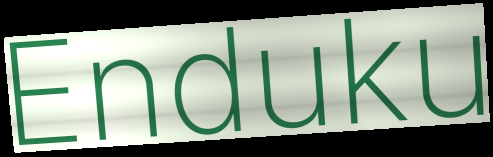
Enduku